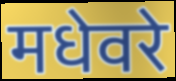
मधेवरे